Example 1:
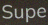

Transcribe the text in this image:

Supe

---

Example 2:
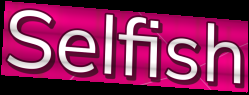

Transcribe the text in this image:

Selfish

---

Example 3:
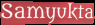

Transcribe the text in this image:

Samyukta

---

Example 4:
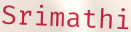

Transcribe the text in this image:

Srimathi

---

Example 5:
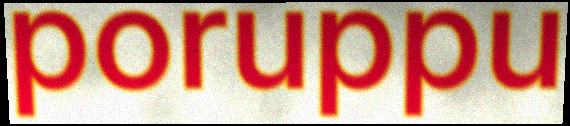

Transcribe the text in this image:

poruppu